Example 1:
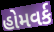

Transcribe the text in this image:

હોમવર્ક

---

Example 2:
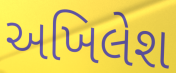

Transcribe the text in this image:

અખિલેશ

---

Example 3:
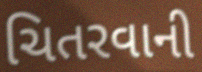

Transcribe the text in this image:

ચિતરવાની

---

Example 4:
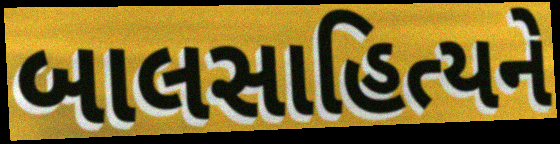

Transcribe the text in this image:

બાલસાહિત્યને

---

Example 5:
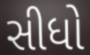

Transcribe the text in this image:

સીધો